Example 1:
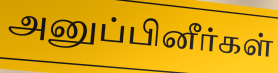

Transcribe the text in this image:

அனுப்பினீர்கள்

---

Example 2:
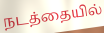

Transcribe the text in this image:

நடத்தையில்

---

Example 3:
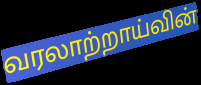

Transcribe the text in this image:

வரலாற்றாய்வின்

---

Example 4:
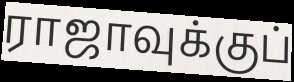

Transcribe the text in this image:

ராஜாவுக்குப்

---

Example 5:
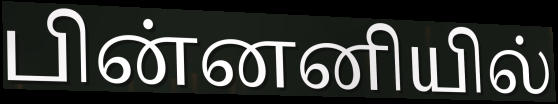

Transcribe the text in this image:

பின்னனியில்